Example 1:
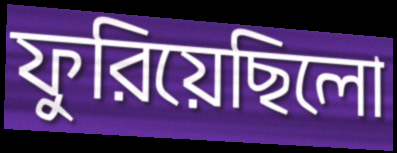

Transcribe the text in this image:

ফুরিয়েছিলো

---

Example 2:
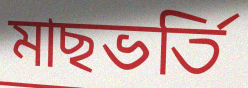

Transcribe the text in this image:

মাছভর্তি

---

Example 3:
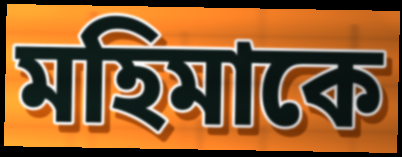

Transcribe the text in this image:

মহিমাকে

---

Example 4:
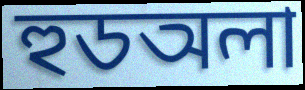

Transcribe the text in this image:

হুডঅলা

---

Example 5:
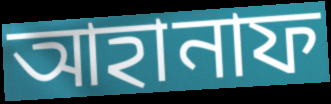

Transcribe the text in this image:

আহানাফ